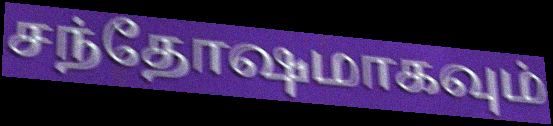
சந்தோஷமாகவும்